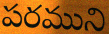
పరముని